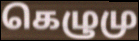
கெழுமு